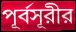
পূর্বসূরীর